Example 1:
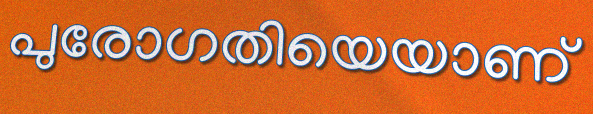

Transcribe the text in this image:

പുരോഗതിയെയാണ്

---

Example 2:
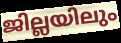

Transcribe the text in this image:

ജില്ലയിലും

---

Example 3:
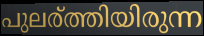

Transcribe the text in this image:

പുലര്ത്തിയിരുന്ന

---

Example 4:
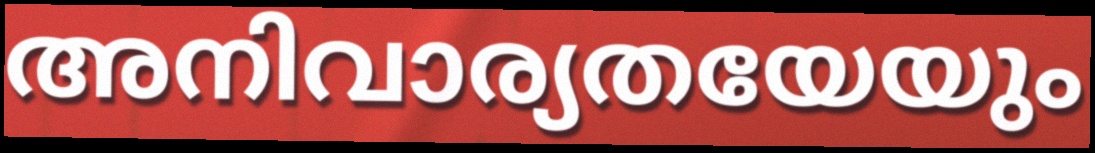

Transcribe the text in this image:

അനിവാര്യതയേയും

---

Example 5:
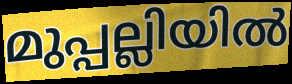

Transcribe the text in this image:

മുപ്പല്ലിയിൽ